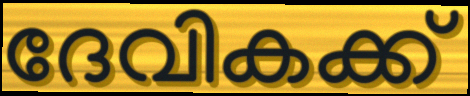
ദേവികക്ക്